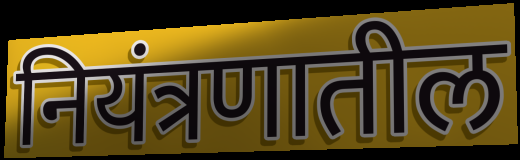
नियंत्रणातील